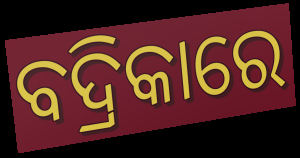
ବଦ୍ରିକାରେ